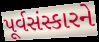
પૂર્વસંસ્કારને